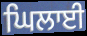
ਘਿਲਾਈ